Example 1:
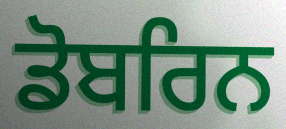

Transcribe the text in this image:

ਡੋਬਰਿਨ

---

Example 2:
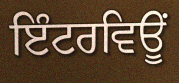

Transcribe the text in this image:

ਇੰਟਰਵਿਊਂ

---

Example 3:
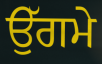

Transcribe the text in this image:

ਉੱਗਮੇ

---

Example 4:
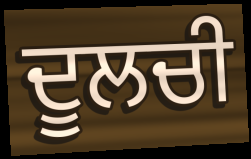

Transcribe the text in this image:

ਦੂਲਚੀ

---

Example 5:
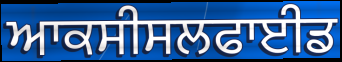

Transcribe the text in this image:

ਆਕਸੀਸਲਫਾਈਡ